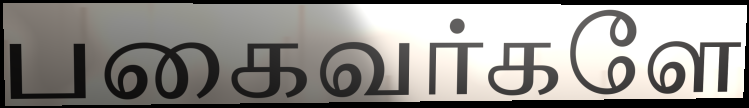
பகைவர்களே